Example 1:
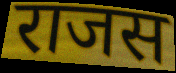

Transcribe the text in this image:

राजस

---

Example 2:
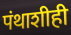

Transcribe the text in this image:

पंथाशीही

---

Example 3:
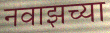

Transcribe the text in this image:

नवाझच्या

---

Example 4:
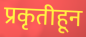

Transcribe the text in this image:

प्रकृतीहून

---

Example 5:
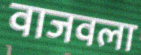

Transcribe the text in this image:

वाजवला